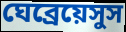
ঘেব্রেয়েসুস